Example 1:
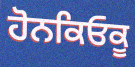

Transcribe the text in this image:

ਹੋਨਕਿਓਕੂ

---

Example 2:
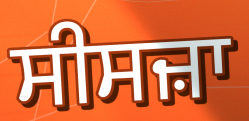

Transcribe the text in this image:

ਸੀਸਜ਼ਾ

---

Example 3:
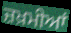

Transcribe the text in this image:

ਜ਼ਖ਼ਮੀਆਂ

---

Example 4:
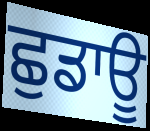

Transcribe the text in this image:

ਛੁਡਾਊ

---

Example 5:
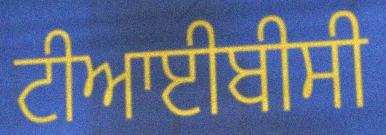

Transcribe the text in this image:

ਟੀਆਈਬੀਸੀ